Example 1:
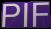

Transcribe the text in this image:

PIF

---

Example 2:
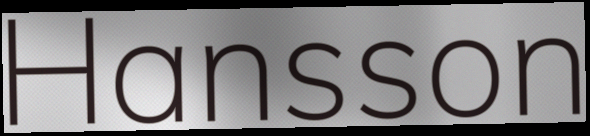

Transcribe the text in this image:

Hansson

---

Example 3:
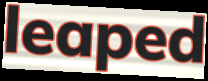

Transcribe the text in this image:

leaped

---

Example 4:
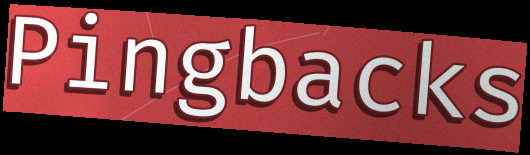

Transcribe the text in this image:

Pingbacks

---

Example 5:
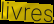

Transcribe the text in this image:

livres